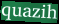
quazih